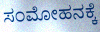
ಸಂಮೋಹನಕ್ಕೆ